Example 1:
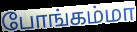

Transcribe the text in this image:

போங்கம்மா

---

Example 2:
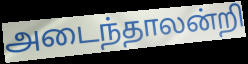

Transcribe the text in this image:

அடைந்தாலன்றி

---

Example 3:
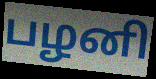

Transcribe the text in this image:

பழனி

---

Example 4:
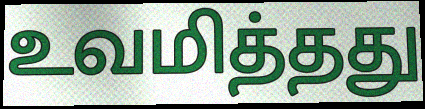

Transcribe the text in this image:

உவமித்தது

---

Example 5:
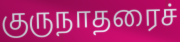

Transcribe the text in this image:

குருநாதரைச்